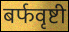
बर्फवृष्टी